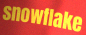
snowflake